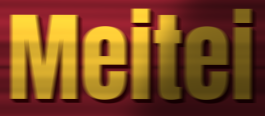
Meitei